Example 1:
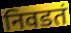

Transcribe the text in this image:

निवडतं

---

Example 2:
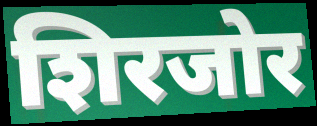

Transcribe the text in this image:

शिरजोर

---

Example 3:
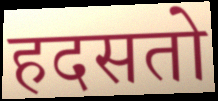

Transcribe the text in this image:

हदसतो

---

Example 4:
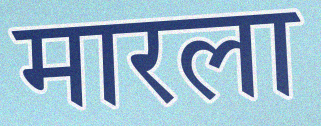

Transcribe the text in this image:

मारला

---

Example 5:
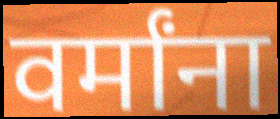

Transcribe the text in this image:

वर्मांना